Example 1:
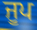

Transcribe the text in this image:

ਜੂਪ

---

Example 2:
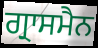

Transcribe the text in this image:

ਗ੍ਰਾਸਮੈਨ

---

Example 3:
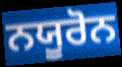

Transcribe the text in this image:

ਨਯੂਰੋਨ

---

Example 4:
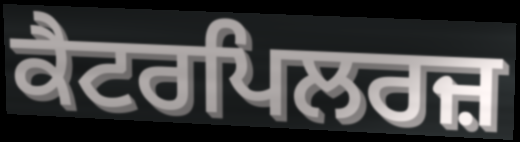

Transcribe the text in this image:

ਕੈਟਰਪਿਲਰਜ਼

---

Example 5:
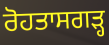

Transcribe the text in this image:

ਰੋਹਤਾਸਗੜ੍ਹ